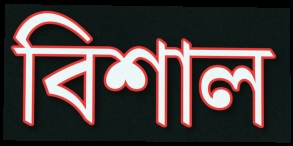
বিশাল